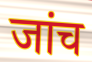
जांच